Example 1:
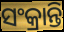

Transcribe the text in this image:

ସଂକ୍ରାନ୍ତି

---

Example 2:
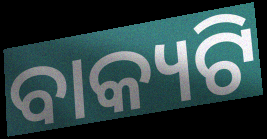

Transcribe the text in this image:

ବାକ୍ୟଟି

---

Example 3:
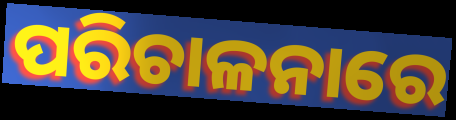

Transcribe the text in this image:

ପରିଚାଳନାରେ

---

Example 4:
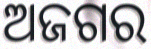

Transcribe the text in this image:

ଅଜଗର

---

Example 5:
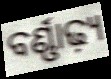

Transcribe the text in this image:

ବର୍ଣ୍ଣାଢ଼୍ୟ